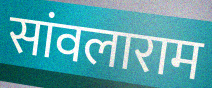
सांवलाराम